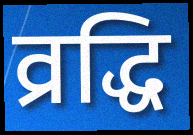
व्रद्धि